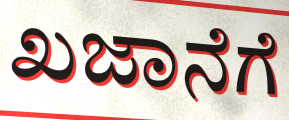
ಖಜಾನೆಗೆ